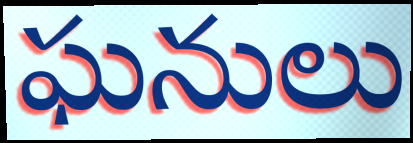
ఘనులు